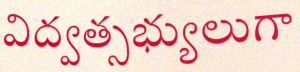
విద్వత్సభ్యులుగా